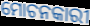
ମୋଚନକାରୀ